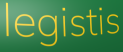
legistis